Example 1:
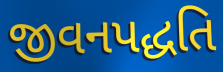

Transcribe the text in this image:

જીવનપદ્ધતિ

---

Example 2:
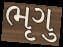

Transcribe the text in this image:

ભૃગુ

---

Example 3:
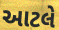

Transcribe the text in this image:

આટલે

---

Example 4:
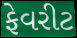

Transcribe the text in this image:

ફેવરીટ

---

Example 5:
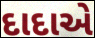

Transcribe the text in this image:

દાદાએ